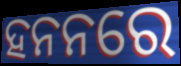
ହନନରେ